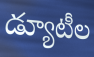
డ్యూటీల